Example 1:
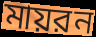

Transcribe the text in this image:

মায়রন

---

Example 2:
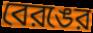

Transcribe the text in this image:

বেরঙের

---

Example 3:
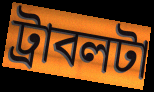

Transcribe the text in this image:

ট্রাবলটা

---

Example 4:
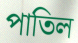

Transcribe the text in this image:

পাতিল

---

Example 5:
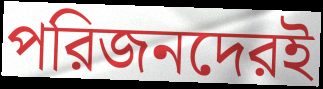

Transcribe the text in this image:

পরিজনদেরই